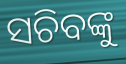
ସଚିବଙ୍କୁ